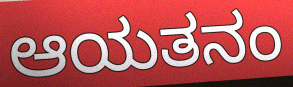
ಆಯತನಂ